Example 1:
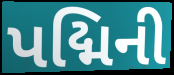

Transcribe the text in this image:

પદ્મિની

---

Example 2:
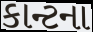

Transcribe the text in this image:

કાન્ટના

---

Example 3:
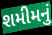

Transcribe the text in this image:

શમીમનું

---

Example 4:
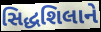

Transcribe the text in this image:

સિદ્ધશિલાને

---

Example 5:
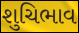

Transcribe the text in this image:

શુચિભાવ